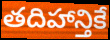
తదిహాన్తికే